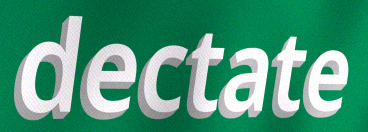
dectate